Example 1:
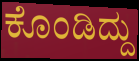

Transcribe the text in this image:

ಕೊಂಡಿದ್ದು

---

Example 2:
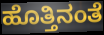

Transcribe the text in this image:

ಹೊತ್ತಿನಂತೆ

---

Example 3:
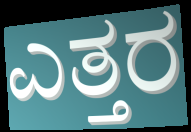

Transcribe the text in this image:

ಎತ್ತರ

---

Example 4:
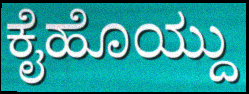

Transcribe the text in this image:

ಕೈಹೊಯ್ದು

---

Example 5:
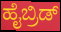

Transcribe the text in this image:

ಹೈಬ್ರಿಡ್